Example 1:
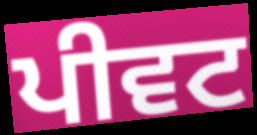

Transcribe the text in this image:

ਪੀਵਟ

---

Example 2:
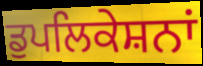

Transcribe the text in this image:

ਡੁਪਲਿਕੇਸ਼ਨਾਂ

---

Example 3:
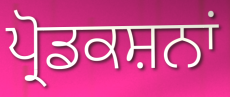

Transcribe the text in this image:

ਪ੍ਰੋਡਕਸ਼ਨਾਂ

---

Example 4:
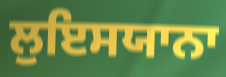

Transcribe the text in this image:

ਲੁਇਸਯਾਨਾ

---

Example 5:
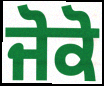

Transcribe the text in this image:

ਜੋਕੋ